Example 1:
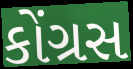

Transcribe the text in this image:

કોંગ્રસ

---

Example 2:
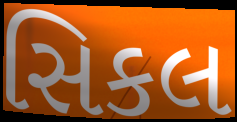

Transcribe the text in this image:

સિકલ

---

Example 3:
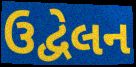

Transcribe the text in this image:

ઉદ્વેલન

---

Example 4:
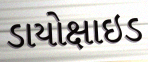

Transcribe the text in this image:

ડાયોક્ષાઇડ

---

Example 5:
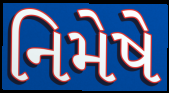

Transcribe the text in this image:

નિમેષે